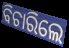
ବିଚାରିଲେ